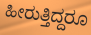
ಹೀರುತ್ತಿದ್ದರೂ